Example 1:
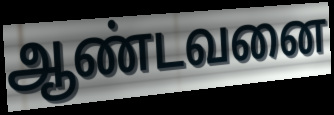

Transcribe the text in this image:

ஆண்டவனை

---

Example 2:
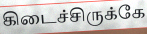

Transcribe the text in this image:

கிடைச்சிருக்கே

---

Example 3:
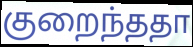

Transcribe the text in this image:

குறைந்ததா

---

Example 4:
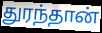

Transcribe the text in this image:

துரந்தான்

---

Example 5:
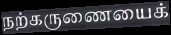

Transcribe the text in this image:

நற்கருணையைக்